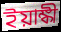
ইয়াঙ্কী